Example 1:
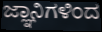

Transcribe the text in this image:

ಜ್ಞಾನಿಗಳಿಂದ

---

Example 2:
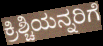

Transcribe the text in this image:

ಕ್ರಿಶ್ಚಿಯನ್ನರಿಗೆ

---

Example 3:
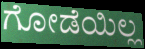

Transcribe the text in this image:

ಗೋಡೆಯಿಲ್ಲ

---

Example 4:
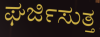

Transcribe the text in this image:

ಘರ್ಜಿಸುತ್ತ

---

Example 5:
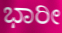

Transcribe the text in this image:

ಭಾರೀ